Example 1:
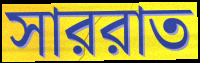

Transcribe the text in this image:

সাররাত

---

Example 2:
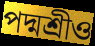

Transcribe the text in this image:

পদ্মশ্রীও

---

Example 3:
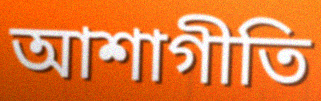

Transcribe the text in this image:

আশাগীতি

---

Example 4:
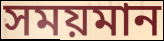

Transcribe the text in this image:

সময়মান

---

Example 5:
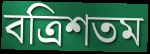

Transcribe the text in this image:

বত্রিশতম